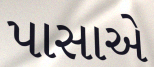
પાસાએ